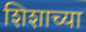
शिशाच्या